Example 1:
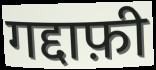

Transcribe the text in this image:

गद्दाफ़ी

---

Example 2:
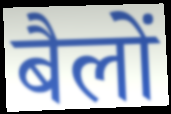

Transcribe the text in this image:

बैलों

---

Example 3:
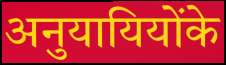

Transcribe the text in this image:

अनुयायियोंके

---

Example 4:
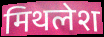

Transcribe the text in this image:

मिथलेश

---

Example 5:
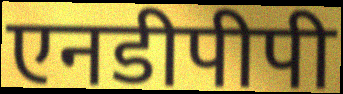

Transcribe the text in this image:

एनडीपीपी